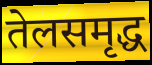
तेलसमृद्ध